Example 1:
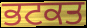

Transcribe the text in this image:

ਭਟਕਤ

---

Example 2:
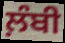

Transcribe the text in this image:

ਲ਼ੰਬੀ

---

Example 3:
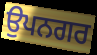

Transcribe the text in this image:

ਉਪਨਗਰ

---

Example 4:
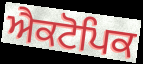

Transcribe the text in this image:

ਐਕਟੋਪਿਕ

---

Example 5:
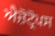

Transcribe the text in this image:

ਐਜ਼ੋਟ੍ਰੋਪਸ